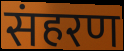
संहरण